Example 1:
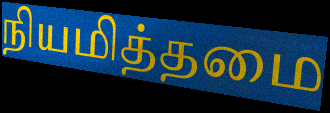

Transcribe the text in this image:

நியமித்தமை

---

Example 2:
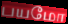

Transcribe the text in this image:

பயமோ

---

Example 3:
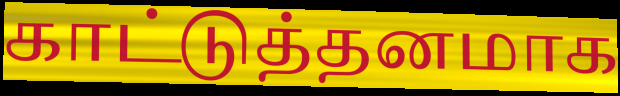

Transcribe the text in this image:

காட்டுத்தனமாக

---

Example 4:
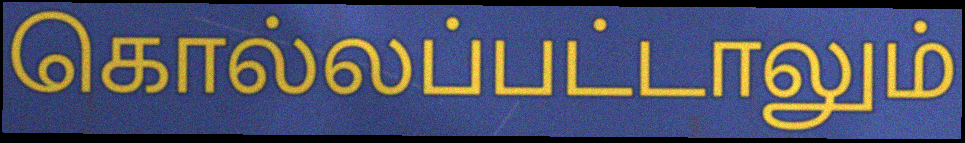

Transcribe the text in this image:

கொல்லப்பட்டாலும்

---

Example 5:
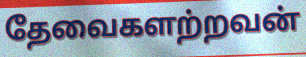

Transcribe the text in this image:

தேவைகளற்றவன்